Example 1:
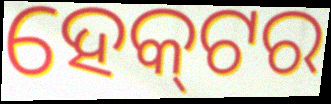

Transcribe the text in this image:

ହେକ୍‌ଟର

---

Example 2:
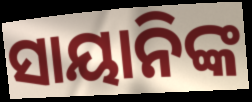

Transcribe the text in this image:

ସାୟାନିଙ୍କ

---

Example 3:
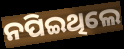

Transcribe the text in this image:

ନପିଇଥିଲେ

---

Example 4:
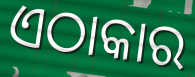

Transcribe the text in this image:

ଏଠାକାର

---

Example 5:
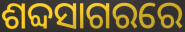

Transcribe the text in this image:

ଶବ୍ଦସାଗରରେ